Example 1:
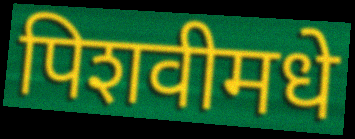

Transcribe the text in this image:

पिशवीमधे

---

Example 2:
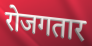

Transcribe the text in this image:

रोजगतार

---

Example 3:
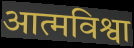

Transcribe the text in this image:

आत्मविश्वा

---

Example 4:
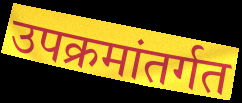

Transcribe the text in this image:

उपक्रमांतर्गत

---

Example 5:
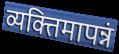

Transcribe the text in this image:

व्यक्तिमापन्नं